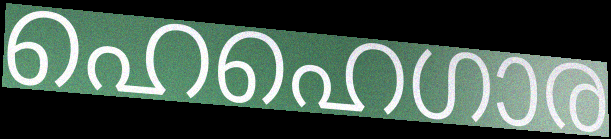
ഹെഹെഗാര